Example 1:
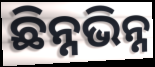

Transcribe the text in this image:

ଛିନ୍ନଭିନ୍ନ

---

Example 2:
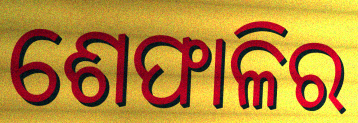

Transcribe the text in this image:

ଶେଫାଳିର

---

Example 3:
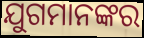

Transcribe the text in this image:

ଯୁଗମାନଙ୍କର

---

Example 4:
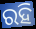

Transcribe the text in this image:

ରହି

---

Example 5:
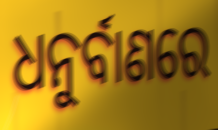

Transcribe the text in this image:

ଧନୁର୍ବାଣରେ